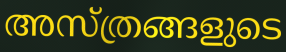
അസ്ത്രങ്ങളുടെ